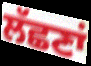
ਲੱਛਣਾਂ